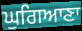
ਘੁਗਿਆਣਾ